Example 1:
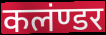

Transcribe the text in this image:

कलंण्डर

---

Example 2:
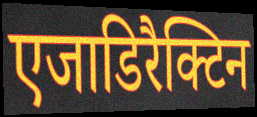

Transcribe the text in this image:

एजाडिरैक्टिन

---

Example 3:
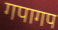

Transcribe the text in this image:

गपागप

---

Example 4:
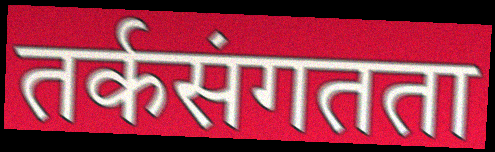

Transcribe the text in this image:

तर्कसंगतता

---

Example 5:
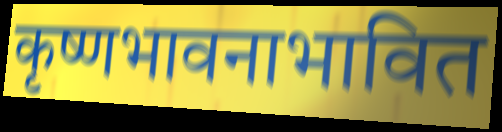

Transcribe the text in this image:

कृष्णभावनाभावित